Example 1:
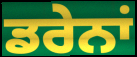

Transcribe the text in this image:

ਡਰੇਨਾਂ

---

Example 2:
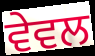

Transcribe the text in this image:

ਵੇਵਲ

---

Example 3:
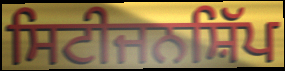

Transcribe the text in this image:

ਸਿਟੀਜਨਸ਼ਿੱਪ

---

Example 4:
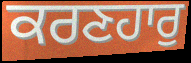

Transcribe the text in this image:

ਕਰਣਹਾਰੁ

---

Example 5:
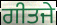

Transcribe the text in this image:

ਗੀਤਜੇ